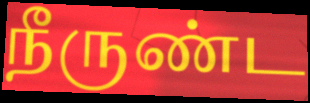
நீருண்ட